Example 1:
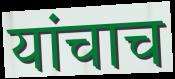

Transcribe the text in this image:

यांचाच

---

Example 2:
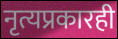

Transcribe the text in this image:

नृत्यप्रकारही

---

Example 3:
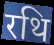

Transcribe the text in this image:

रथि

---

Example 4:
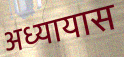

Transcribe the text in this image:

अध्यायास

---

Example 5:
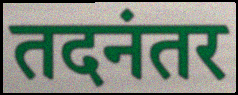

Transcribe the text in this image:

तदनंतर